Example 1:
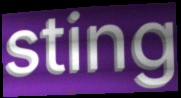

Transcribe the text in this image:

sting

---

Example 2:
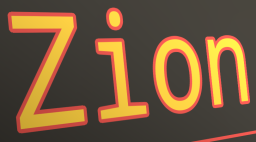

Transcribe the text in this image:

Zion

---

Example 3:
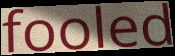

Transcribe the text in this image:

fooled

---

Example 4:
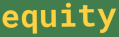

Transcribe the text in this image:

equity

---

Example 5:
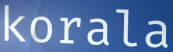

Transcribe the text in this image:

korala